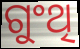
ଗୁଂଥି